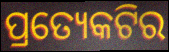
ପ୍ରତ୍ୟେକଟିର